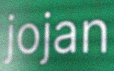
jojan